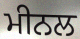
ਮੀਨਲ